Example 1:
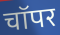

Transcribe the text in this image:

चॉपर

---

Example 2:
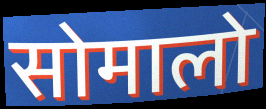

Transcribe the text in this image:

सोमालो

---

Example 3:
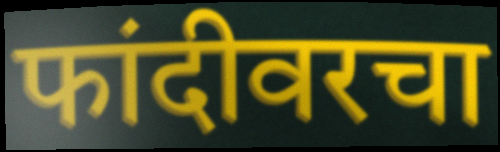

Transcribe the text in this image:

फांदीवरचा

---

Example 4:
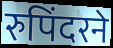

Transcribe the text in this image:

रुपिंदरने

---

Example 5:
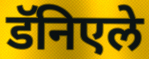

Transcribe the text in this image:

डॅनिएले